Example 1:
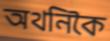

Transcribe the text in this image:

অথনিকৈ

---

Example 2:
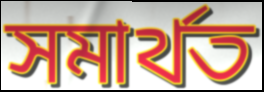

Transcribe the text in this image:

সমাৰ্থত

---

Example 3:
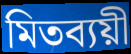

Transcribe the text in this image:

মিতব্যয়ী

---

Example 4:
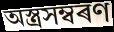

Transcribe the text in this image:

অস্ত্ৰসম্বৰণ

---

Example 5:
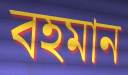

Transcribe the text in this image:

বহমান